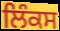
ਲਿੰਕਸ